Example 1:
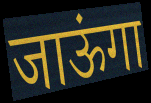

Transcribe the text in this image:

जाऊंगा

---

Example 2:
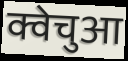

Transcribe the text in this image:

क्वेचुआ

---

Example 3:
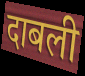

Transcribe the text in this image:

दाबली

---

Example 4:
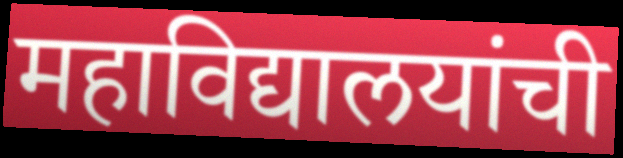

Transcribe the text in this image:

महाविद्यालयांची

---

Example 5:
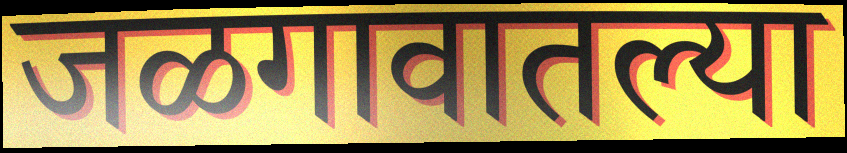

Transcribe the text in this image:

जळगावातल्या